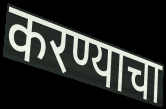
करण्याचा